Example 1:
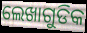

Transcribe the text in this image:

ଲେଖାଗୁଡିକ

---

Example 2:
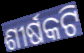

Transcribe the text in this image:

ଶୀର୍ଷକଟି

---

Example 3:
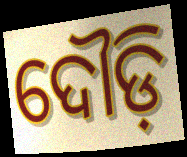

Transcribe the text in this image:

ଦୌଡ଼ି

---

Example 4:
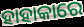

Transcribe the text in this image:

ହାହାକାରେ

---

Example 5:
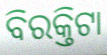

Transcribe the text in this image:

ବିରକ୍ତିଟା